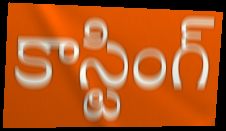
కాస్టింగ్